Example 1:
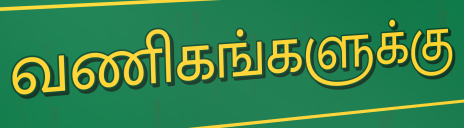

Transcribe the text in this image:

வணிகங்களுக்கு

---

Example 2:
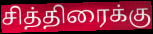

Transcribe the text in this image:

சித்திரைக்கு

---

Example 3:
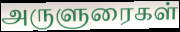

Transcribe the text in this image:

அருளுரைகள்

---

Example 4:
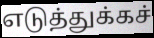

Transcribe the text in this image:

எடுத்துக்கச்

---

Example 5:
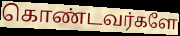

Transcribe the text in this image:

கொண்டவர்களே